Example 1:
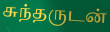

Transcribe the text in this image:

சுந்தருடன்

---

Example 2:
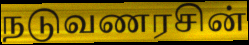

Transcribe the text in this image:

நடுவணரசின்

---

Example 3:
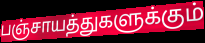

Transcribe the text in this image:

பஞ்சாயத்துகளுக்கும்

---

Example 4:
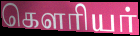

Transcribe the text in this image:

கௌரியர்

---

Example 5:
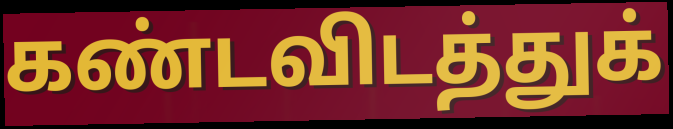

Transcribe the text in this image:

கண்டவிடத்துக்